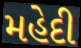
મહેદી